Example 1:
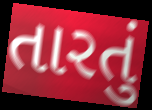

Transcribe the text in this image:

તારતું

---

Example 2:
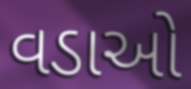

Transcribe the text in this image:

વડાઓ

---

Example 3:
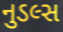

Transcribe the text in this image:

નુડલ્સ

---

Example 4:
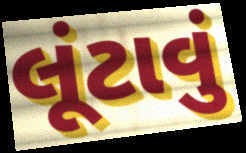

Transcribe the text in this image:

લૂંટાવું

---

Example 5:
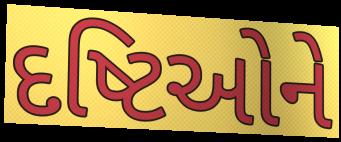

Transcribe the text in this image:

દષ્ટિઓને